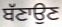
ਬੱਣਾਉਣ